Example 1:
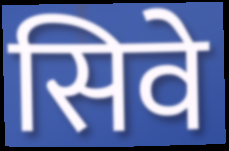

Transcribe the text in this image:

सिवे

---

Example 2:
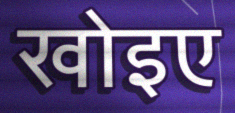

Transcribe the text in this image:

खोइए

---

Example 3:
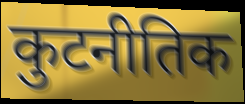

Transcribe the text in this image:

कुटनीतिक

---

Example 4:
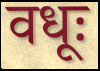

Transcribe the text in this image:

वधूः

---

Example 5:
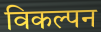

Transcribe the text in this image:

विकल्पन